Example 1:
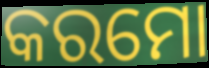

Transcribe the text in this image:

କରମୋ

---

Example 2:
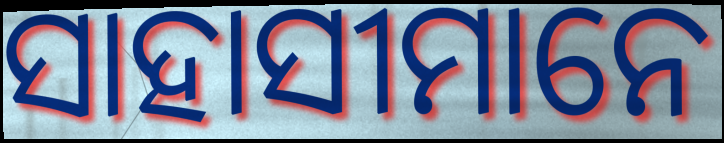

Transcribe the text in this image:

ସାହାସୀମାନେ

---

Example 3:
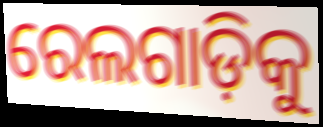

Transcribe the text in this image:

ରେଲଗାଡ଼ିକୁ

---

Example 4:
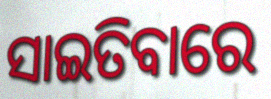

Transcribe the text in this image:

ସାଇତିବାରେ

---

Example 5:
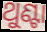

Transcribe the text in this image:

ଥୁଣ୍ଟା